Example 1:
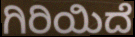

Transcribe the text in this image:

ಗಿರಿಯಿದೆ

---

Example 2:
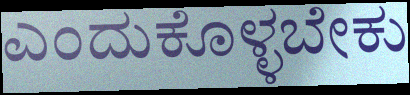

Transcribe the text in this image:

ಎಂದುಕೊಳ್ಳಬೇಕು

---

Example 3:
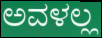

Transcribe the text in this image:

ಅವಳಲ್ಲ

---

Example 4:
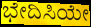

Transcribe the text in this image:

ಭೇದಿಸಿಯೇ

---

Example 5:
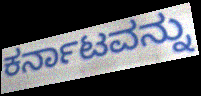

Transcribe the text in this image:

ಕರ್ನಾಟವನ್ನು